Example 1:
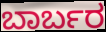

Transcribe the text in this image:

ಬಾರ್ಬರ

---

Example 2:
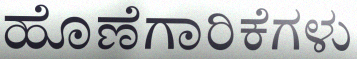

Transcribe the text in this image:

ಹೊಣೆಗಾರಿಕೆಗಳು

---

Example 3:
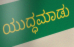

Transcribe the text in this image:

ಯುದ್ಧಮಾಡು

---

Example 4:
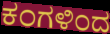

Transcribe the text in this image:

ಕಂಗಳಿಂದ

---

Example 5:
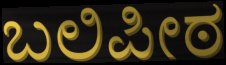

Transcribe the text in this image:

ಬಲಿಪೀಠ